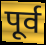
पूर्व